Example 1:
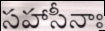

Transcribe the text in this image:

సహాసీనాః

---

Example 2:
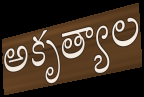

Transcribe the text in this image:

అకృత్యాల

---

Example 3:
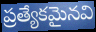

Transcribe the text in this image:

ప్రత్యేకమైనవి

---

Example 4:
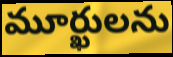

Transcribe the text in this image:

మూర్ఖులను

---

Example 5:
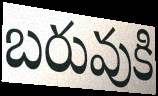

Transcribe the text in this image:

బరువుకి